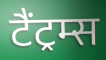
टैंट्रम्स